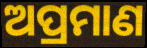
ଅପ୍ରମାଣ